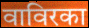
वाविरका